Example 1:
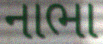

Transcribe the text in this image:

નાભા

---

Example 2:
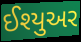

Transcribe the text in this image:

ઈશ્યુઅર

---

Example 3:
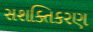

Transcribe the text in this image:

સશક્તિકરણ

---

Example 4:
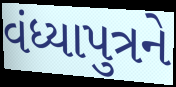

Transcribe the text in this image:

વંધ્યાપુત્રને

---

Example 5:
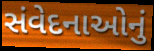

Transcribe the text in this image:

સંવેદનાઓનું